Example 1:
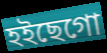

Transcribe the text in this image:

হইছেগো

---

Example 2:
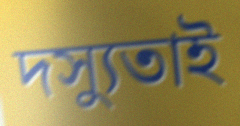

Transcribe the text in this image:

দস্যুতাই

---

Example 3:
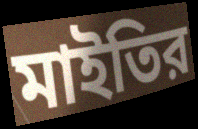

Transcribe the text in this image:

মাইতির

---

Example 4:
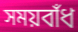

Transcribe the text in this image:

সময়বাঁধ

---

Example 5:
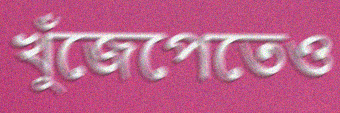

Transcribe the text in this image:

খুঁজেপেতেও